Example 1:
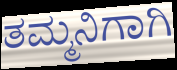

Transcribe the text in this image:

ತಮ್ಮನಿಗಾಗಿ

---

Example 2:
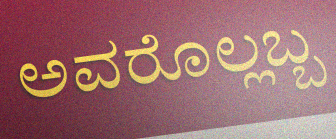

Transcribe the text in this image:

ಅವರೊಲ್ಲಬ್ಬ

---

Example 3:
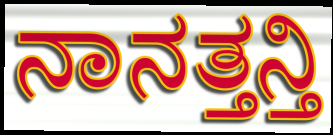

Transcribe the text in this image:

ನಾನತ್ತನ್ತಿ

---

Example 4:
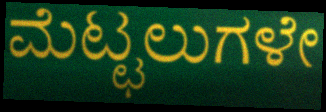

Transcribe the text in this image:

ಮೆಟ್ಟಲುಗಳೇ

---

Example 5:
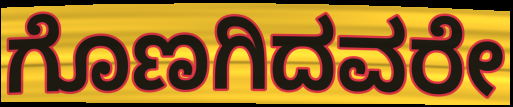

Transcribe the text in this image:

ಗೊಣಗಿದವರೇ